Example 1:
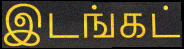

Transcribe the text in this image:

இடங்கட்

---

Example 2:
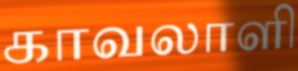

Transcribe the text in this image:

காவலாளி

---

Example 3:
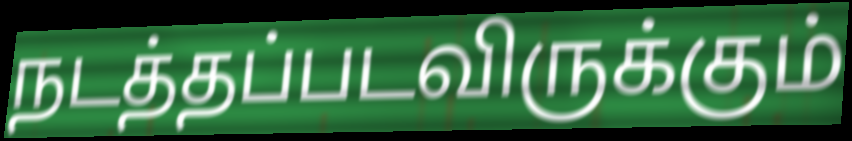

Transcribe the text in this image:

நடத்தப்படவிருக்கும்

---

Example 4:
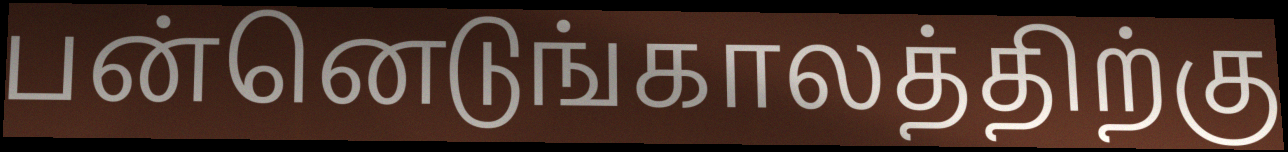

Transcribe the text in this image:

பன்னெடுங்காலத்திற்கு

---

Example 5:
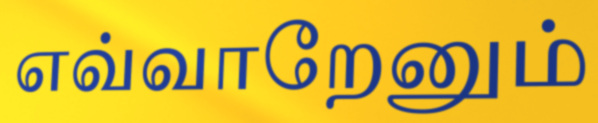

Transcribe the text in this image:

எவ்வாறேனும்